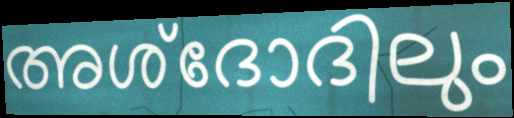
അശ്ദോദിലും